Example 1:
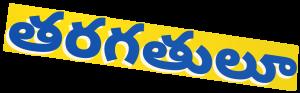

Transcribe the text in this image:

తరగతులూ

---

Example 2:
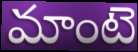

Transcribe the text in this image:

మాంటె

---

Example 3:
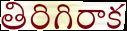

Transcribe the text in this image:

తిరిగిరాక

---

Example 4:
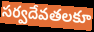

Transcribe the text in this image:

సర్వదేవతలకూ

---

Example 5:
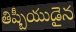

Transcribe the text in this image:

తిష్బీయుడైన